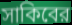
সাকিবের